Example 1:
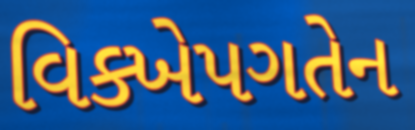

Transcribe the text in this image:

વિક્ખેપગતેન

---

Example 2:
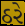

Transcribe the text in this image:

ઠરે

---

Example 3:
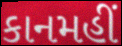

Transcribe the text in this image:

કાનમહીં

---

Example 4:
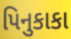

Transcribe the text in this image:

પિનુકાકા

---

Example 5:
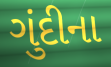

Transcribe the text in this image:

ગુંદીના